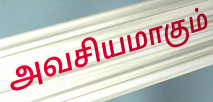
அவசியமாகும்